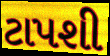
ટાપશી